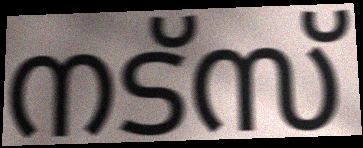
നട്സ്